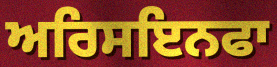
ਅਰਿਸਇਨਫਾ